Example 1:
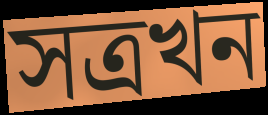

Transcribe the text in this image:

সত্ৰখন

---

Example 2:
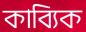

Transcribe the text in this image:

কাব্যিক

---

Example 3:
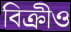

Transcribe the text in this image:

বিক্ৰীও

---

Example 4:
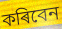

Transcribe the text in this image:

কৰিবেন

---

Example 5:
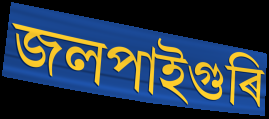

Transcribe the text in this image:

জলপাইগুৰি